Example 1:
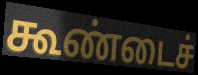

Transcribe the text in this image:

கூண்டைச்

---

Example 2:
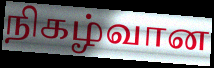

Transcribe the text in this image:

நிகழ்வான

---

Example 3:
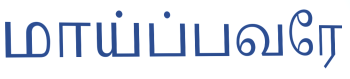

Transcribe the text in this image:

மாய்ப்பவரே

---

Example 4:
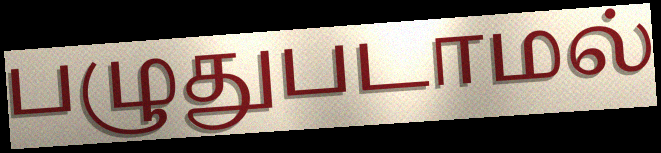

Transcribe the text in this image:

பழுதுபடாமல்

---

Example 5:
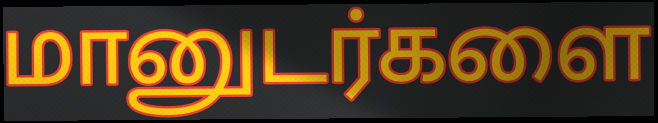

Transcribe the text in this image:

மானுடர்களை